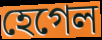
হেগেল